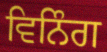
ਵਿਨਿੰਗ